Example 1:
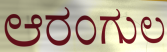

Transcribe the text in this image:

ಆರಂಗುಲ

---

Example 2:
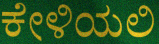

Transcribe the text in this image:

ಕೇಳಿಯಲಿ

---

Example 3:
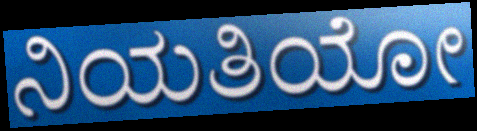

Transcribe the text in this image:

ನಿಯತಿಯೋ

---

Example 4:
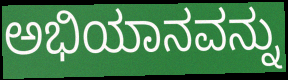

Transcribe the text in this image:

ಅಭಿಯಾನವನ್ನು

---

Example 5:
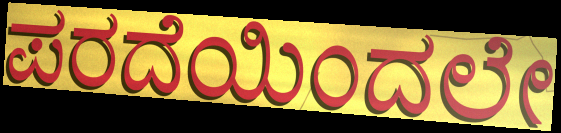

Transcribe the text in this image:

ಪರದೆಯಿಂದಲೇ